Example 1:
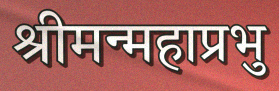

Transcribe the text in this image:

श्रीमन्महाप्रभु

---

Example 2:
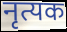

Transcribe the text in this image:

नृत्यक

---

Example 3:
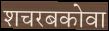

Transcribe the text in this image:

शचरबकोवा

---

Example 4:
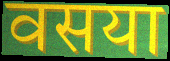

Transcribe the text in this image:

वसया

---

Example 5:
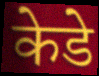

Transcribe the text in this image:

केडे